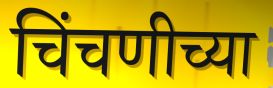
चिंचणीच्या